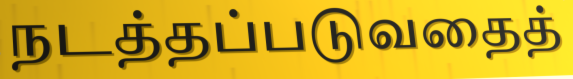
நடத்தப்படுவதைத்